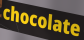
chocolate